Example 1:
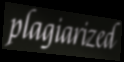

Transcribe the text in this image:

plagiarized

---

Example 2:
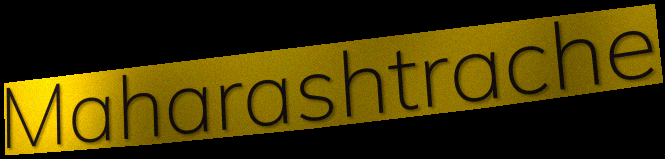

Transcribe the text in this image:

Maharashtrache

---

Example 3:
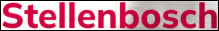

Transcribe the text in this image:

Stellenbosch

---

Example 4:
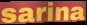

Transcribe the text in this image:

sarina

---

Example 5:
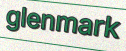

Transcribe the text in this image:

glenmark